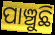
ପାଞ୍ଚୁଛି